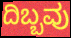
ದಿಬ್ಬವು